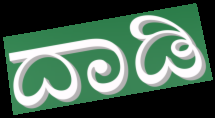
ದಾಡಿ